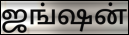
ஜங்ஷன்